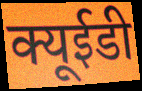
क्यूईडी